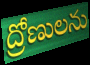
ద్రోణులను